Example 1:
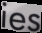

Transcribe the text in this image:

ies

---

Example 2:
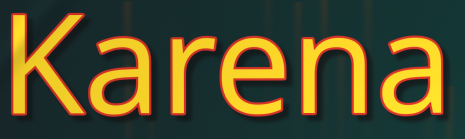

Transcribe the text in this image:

Karena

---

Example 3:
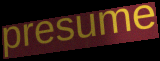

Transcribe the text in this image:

presume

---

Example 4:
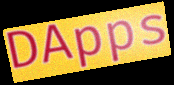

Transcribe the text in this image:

DApps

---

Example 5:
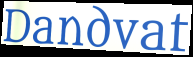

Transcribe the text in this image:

Dandvat